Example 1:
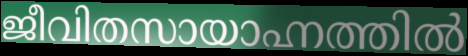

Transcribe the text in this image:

ജീവിതസായാഹ്നത്തിൽ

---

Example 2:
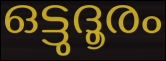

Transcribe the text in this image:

ഒട്ടുദൂരം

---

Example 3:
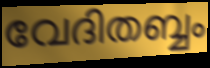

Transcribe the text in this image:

വേദിതബ്ബം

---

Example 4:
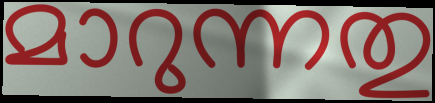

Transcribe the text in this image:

മാറുന്നതു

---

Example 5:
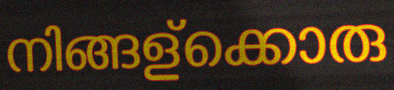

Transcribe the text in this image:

നിങ്ങള്ക്കൊരു